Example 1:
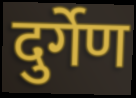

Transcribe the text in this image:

दुर्गेण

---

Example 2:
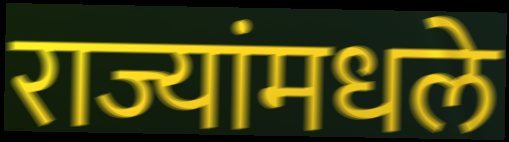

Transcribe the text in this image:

राज्यांमधले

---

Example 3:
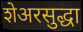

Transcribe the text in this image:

शेअरसुद्धा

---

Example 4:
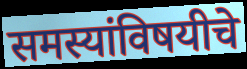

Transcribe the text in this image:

समस्यांविषयीचे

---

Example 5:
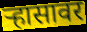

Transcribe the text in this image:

ऱ्हासावर